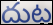
దుట